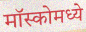
मॉस्कोमध्ये